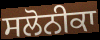
ਸਲੋਨੀਕਾ